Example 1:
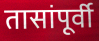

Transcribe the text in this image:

तासांपूर्वी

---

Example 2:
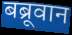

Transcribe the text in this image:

बब्रूवान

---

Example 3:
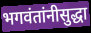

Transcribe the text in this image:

भगवंतांनीसुद्धा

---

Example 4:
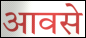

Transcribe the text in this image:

आवसे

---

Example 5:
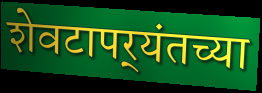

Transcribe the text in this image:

शेवटापर्यंतच्या